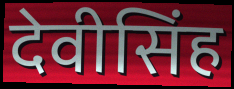
देवीसिंह